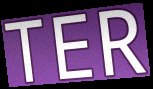
TER